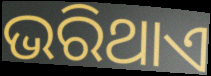
ଭରିଥାଏ